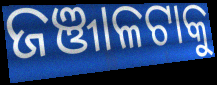
ଜଞ୍ଜାଳଟାକୁ